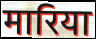
मारिया